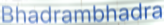
Bhadrambhadra